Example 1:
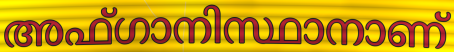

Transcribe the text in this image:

അഫ്ഗാനിസ്ഥാനാണ്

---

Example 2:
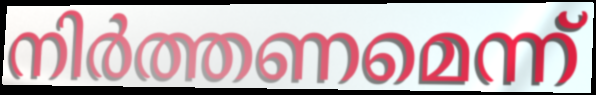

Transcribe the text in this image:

നിർത്തണമെന്ന്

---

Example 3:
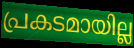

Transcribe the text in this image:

പ്രകടമായില്ല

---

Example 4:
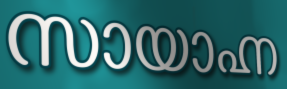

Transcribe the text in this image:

സായാഹ്ന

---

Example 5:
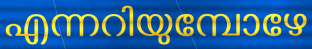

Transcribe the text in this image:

എന്നറിയുമ്പോഴേ